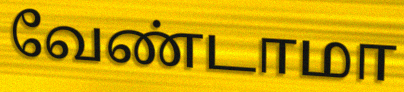
வேண்டாமா